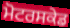
ਮੋਟਰਸਕੇਡ